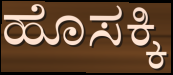
ಹೊಸಕ್ಕಿ